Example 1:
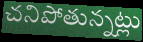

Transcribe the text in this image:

చనిపోతున్నట్లు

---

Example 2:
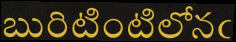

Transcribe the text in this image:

బురిటింటిలోనఁ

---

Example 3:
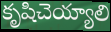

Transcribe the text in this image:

కృషిచెయ్యాలి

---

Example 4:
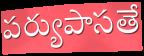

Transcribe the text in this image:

పర్యుపాసతే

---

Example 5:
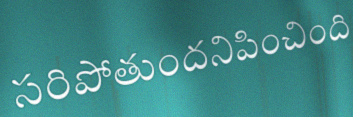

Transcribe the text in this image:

సరిపోతుందనిపించింది